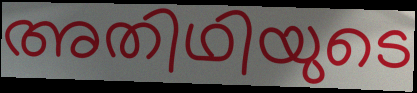
അതിഥിയുടെ